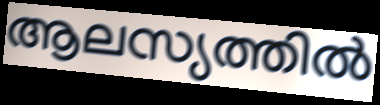
ആലസ്യത്തിൽ